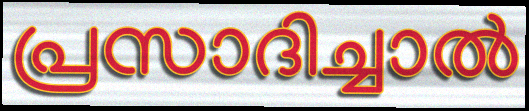
പ്രസാദിച്ചാൽ